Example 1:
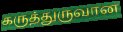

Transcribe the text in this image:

கருத்துருவான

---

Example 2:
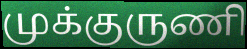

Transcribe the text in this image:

முக்குருணி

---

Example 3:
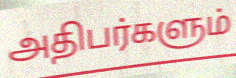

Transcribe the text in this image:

அதிபர்களும்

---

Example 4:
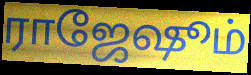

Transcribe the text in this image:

ராஜேஷூம்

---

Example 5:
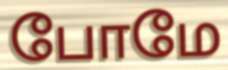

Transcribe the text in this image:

போமே